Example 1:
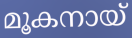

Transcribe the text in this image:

മൂകനായ്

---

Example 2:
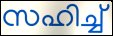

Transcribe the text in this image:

സഹിച്ച്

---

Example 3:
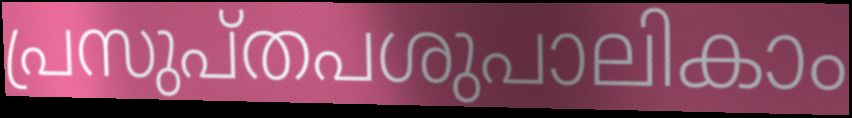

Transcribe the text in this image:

പ്രസുപ്തപശുപാലികാം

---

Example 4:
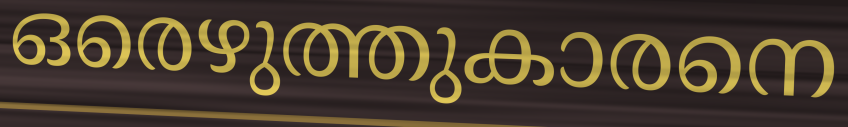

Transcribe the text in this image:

ഒരെഴുത്തുകാരനെ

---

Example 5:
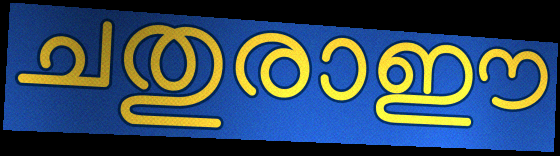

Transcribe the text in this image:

ചതുരാഈ